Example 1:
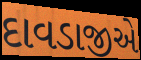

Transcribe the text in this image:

દાવડાજીએ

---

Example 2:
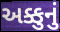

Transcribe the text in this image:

અક્કુનું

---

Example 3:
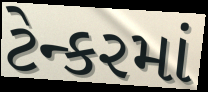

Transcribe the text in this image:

ટેન્કરમાં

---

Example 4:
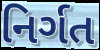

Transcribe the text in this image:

નિર્ગત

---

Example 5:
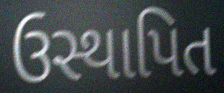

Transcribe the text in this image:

ઉસ્થાપિત